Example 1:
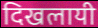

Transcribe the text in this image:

दिखलायी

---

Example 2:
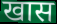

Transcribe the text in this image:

खास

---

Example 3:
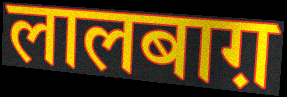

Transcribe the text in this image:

लालबाग़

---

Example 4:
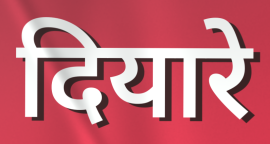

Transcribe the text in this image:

दियारे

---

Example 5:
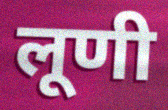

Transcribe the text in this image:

लूणी